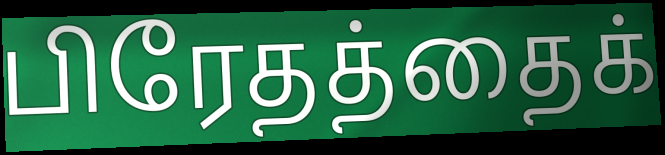
பிரேதத்தைக்